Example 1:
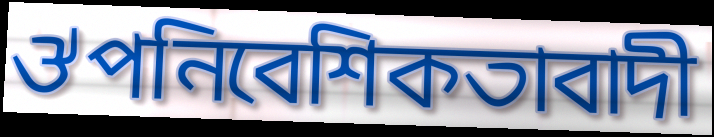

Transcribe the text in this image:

ঔপনিবেশিকতাবাদী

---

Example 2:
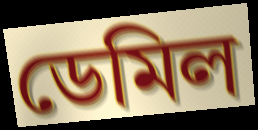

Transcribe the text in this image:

ডেমিল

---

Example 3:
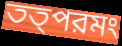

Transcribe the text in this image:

তত্পরমং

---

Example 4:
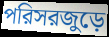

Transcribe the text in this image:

পরিসরজুড়ে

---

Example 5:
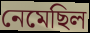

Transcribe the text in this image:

নেমেছিল